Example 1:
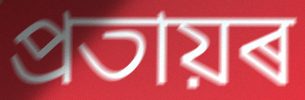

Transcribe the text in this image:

প্ৰতায়ৰ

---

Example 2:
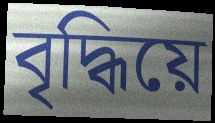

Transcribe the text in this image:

বৃদ্ধিয়ে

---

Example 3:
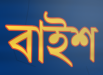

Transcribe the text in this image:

বাইশ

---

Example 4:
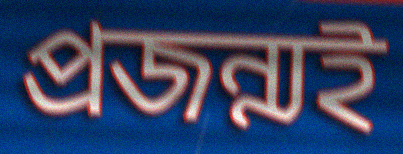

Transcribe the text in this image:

প্ৰজন্মই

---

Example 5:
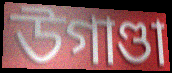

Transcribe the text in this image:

উগাণ্ডা